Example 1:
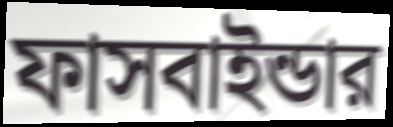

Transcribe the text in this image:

ফাসবাইন্ডার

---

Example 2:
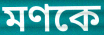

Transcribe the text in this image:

মণকে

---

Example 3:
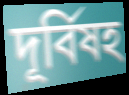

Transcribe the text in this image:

দূর্বিষহ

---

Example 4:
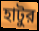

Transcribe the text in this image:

হাটুর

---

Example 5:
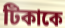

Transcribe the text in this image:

টিকাকে